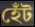
হেঁট